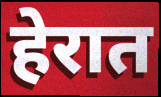
हेरात